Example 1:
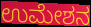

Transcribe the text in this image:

ಉಮೇಶನ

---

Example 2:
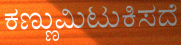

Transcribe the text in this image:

ಕಣ್ಣುಮಿಟುಕಿಸದೆ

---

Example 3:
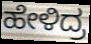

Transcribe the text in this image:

ಹೇಳಿದ್ರ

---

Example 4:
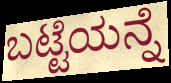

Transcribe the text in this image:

ಬಟ್ಟೆಯನ್ನೆ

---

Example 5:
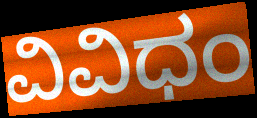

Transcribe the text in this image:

ವಿವಿಧಂ